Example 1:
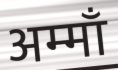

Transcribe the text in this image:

अम्माँ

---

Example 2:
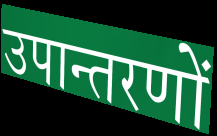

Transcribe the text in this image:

उपान्तरणों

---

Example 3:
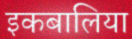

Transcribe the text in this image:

इकबालिया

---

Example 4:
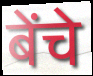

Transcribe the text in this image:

बेंचे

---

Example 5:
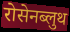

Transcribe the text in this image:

रोसेनब्लुथ